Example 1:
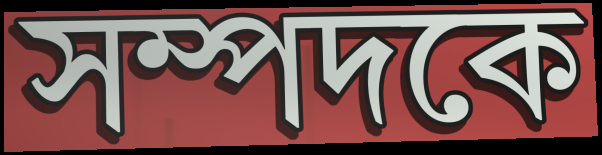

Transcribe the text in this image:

সম্পদকে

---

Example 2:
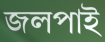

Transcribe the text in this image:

জলপাই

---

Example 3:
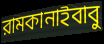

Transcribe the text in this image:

রামকানাইবাবু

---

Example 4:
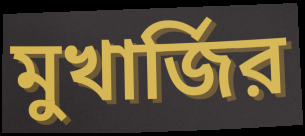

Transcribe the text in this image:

মুখার্জির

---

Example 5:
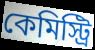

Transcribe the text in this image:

কেমিস্ট্রি